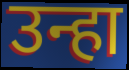
उन्हा